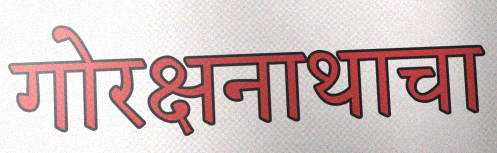
गोरक्षनाथाचा